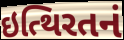
ઇત્થિરતનં